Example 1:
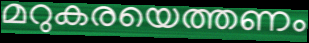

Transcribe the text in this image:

മറുകരയെത്തണം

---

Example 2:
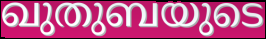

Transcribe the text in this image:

ഖുതുബയുടെ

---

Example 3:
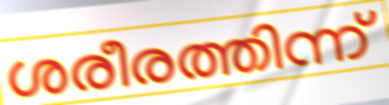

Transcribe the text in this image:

ശരീരത്തിന്ന്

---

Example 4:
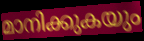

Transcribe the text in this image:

മാനിക്കുകയും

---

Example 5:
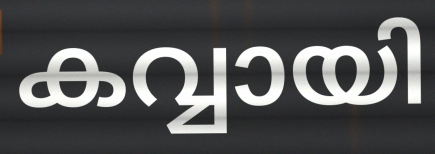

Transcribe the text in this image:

കവ്വായി